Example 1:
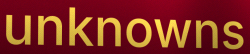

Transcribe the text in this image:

unknowns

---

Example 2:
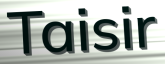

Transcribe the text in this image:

Taisir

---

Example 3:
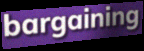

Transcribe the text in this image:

bargaining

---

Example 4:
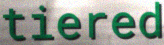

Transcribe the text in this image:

tiered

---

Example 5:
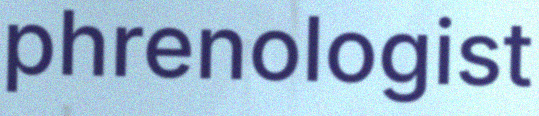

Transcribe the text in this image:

phrenologist